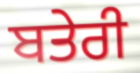
ਬਤੇਰੀ